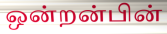
ஒன்றன்பின்